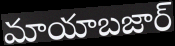
మాయాబజార్